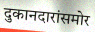
दुकानदारांसमोर